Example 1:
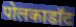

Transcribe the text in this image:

पोलकाडॉट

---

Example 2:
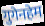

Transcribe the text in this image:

गुगेनहेम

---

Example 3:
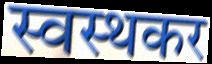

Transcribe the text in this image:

स्वस्थकर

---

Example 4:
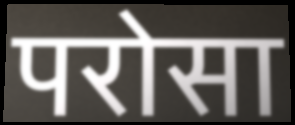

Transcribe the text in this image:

परोसा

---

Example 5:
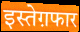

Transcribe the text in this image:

इस्तेग़फार